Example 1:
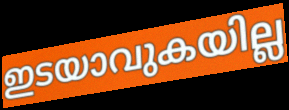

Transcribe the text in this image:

ഇടയാവുകയില്ല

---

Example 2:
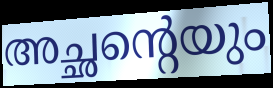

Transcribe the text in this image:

അച്ഛന്റെയും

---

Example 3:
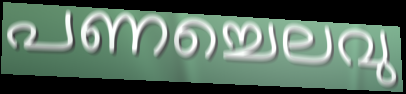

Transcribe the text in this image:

പണച്ചെലവു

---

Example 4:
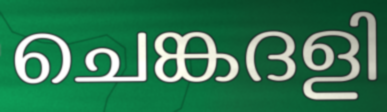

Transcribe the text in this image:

ചെങ്കദളി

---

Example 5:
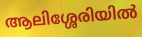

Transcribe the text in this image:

ആലിശ്ശേരിയിൽ